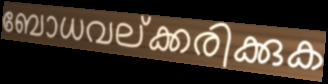
ബോധവല്ക്കരിക്കുക